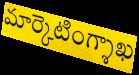
మార్కెటింగ్శాఖ